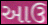
આઉ